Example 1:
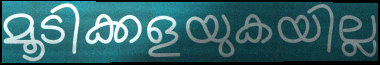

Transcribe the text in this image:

മൂടിക്കളയുകയില്ല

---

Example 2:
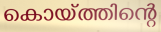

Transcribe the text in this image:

കൊയ്ത്തിന്റെ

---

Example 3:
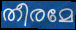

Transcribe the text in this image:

തീരമേ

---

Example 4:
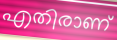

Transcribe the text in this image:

എതിരാണ്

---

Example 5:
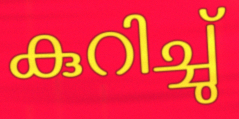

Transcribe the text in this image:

കുറിച്ചു്